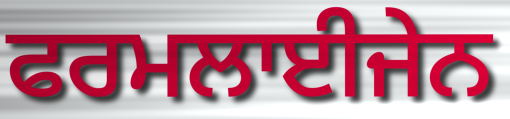
ਫਰਮਲਾਈਜੇਨ